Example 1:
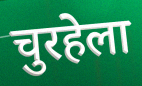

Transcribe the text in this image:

चुरहेला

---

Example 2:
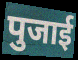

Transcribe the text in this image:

पुजाई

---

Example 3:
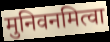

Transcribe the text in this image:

मुनिवनमित्वा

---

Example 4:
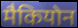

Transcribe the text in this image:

मैकियोन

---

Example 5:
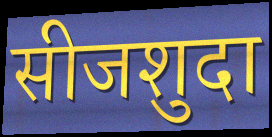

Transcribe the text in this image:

सीजशुदा